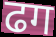
ढग